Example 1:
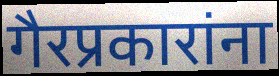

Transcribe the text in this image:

गैरप्रकारांना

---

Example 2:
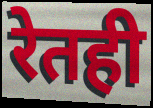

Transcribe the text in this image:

रेतही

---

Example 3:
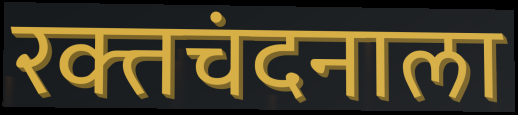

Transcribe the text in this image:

रक्तचंदनाला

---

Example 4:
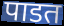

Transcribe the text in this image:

पाडत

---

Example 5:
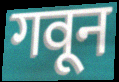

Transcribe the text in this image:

गवून